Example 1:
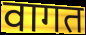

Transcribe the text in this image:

वागत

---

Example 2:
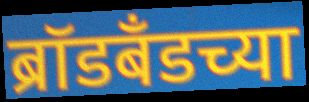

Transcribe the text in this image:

ब्रॉडबँडच्या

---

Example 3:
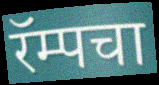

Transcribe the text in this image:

रॅम्पचा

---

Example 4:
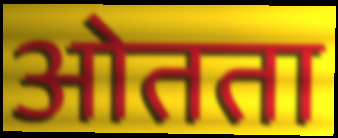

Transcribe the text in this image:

ओतता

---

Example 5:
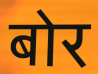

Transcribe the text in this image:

बोर